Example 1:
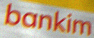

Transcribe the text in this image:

bankim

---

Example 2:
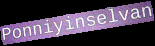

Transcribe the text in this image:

Ponniyinselvan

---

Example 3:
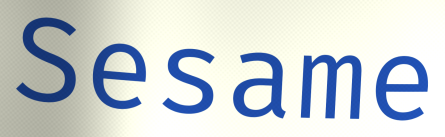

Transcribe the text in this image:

Sesame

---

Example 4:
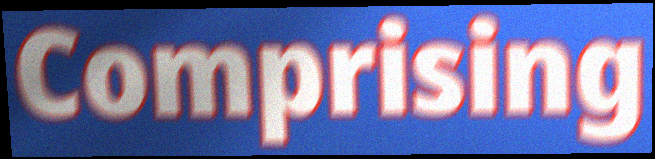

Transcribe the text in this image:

Comprising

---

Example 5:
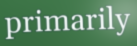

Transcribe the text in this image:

primarily